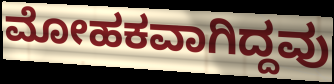
ಮೋಹಕವಾಗಿದ್ದವು